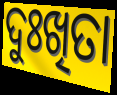
ଦୁଃଖିତା